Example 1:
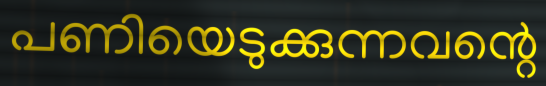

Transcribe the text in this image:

പണിയെടുക്കുന്നവന്റെ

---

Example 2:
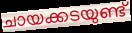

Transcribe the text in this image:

ചായക്കടയുണ്ട്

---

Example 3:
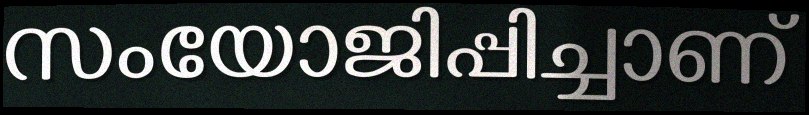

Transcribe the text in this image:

സംയോജിപ്പിച്ചാണ്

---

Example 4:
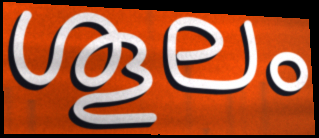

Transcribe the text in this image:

ശൂലം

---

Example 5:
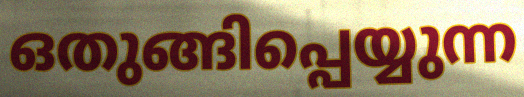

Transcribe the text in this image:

ഒതുങ്ങിപ്പെയ്യുന്ന